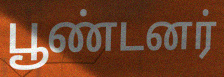
பூண்டனர்